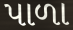
પાળા